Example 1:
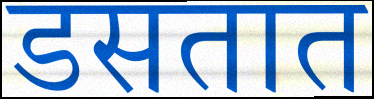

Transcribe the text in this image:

डसतात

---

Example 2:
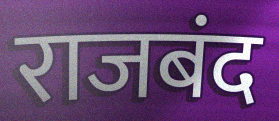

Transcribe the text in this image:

राजबंद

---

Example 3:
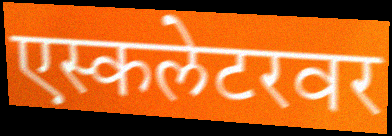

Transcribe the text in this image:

एस्कलेटरवर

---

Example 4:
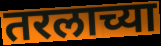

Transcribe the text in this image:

तरलाच्या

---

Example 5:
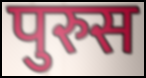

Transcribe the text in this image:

पुरुस